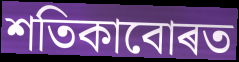
শতিকাবোৰত